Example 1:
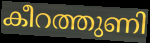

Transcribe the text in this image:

കീറത്തുണി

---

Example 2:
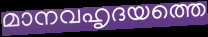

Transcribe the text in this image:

മാനവഹൃദയത്തെ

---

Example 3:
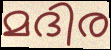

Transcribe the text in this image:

മദിര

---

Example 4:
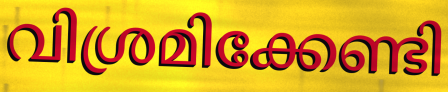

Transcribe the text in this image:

വിശ്രമിക്കേണ്ടി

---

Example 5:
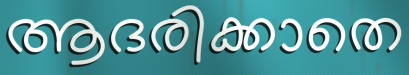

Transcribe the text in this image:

ആദരിക്കാതെ